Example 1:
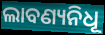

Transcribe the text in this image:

ଲାବଣ୍ୟନିଧୂ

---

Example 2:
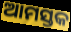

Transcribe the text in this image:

ଆମସ୍ତକ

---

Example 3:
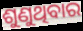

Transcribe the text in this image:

ଶୁଣୁଥିବାର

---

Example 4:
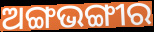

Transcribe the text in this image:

ଅଙ୍ଗଭଙ୍ଗୀର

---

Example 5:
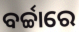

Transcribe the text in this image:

ବର୍ଚ୍ଚାରେ